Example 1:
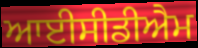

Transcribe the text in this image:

ਆਈਸੀਡੀਐਮ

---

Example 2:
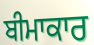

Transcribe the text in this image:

ਬੀਮਾਕਾਰ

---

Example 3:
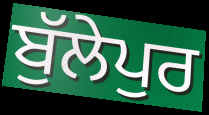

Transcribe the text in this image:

ਬੁੱਲੇਪੁਰ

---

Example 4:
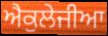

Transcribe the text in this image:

ਐਕੁਲੇਜੀਆ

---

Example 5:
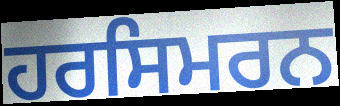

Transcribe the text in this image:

ਹਰਸਿਮਰਨ